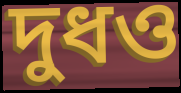
দুধও